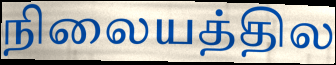
நிலையத்தில